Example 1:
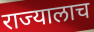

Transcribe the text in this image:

राज्यालाच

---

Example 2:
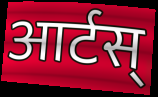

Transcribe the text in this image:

आर्टस्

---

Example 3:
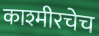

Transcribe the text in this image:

काश्मीरचेच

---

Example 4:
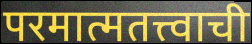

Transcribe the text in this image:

परमात्मतत्त्वाची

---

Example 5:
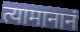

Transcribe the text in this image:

त्यामानानं